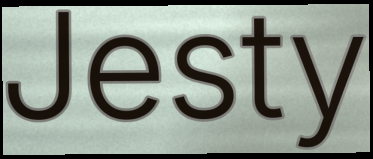
Jesty